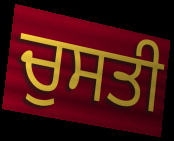
ਚੁਸਤੀ